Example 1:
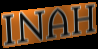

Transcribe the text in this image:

INAH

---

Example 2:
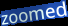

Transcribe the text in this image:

zoomed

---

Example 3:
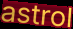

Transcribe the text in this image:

astrol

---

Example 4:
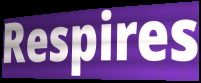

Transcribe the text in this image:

Respires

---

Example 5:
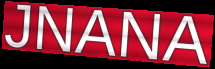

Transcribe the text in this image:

JNANA